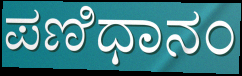
ಪಣಿಧಾನಂ